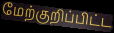
மேற்குறிப்பிட்ட